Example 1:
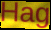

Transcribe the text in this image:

Hag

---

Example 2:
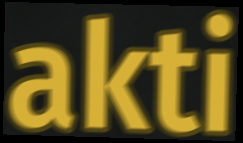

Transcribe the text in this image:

akti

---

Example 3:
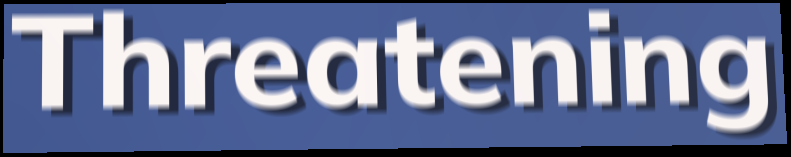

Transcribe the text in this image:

Threatening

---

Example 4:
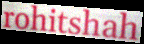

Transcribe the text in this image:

rohitshah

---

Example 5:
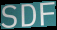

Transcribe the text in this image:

SDF